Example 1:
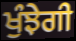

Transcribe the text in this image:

ਖੁੰਝੇਗੀ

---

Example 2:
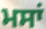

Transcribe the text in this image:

ਮਸਾਂ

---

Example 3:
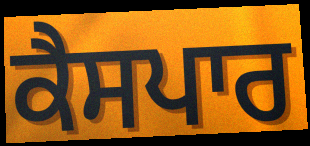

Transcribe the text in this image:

ਕੈਸਪਾਰ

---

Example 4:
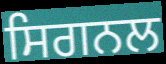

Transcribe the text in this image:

ਸਿਗਨਲ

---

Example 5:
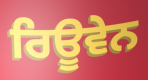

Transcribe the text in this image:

ਰਿਊਵੇਨ